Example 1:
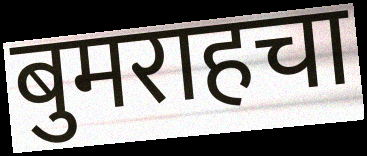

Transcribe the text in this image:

बुमराहचा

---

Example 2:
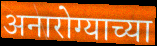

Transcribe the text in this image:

अनारोग्याच्या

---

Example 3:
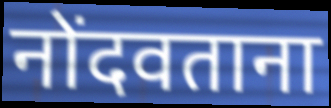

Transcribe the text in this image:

नोंदवताना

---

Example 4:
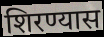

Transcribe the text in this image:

शिरण्यास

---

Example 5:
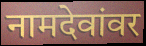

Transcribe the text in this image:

नामदेवांवर